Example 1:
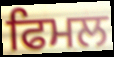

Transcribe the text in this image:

ਫਿਮਲ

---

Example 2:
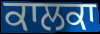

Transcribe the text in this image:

ਕਾਲਕਾ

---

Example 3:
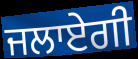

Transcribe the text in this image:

ਜਲਾਏਗੀ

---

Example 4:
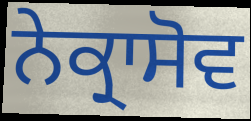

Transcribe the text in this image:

ਨੇਕ੍ਰਾਸੋਵ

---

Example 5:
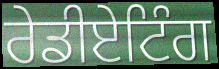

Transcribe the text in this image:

ਰੇਡੀਏਟਿੰਗ